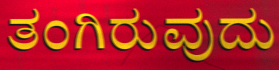
ತಂಗಿರುವುದು